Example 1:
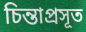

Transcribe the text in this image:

চিন্তাপ্রসূত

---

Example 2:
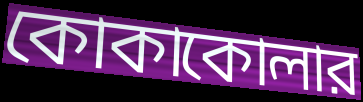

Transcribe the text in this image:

কোকাকোলার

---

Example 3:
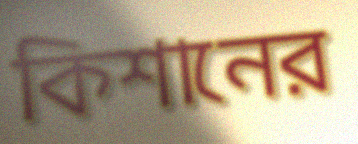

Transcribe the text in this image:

কিশানের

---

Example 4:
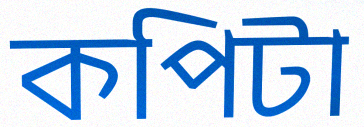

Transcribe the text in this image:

কপিটা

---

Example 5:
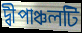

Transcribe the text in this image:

দ্বীপাঞ্চলটি